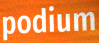
podium